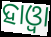
ହାଓ୍ୱା